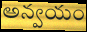
అన్వయం